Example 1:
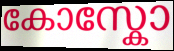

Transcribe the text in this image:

കോസ്കോ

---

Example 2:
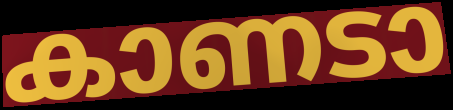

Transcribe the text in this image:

കാണടാ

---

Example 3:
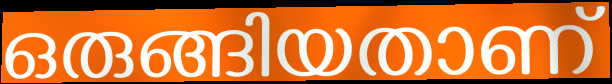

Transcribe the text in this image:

ഒരുങ്ങിയതാണ്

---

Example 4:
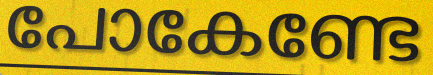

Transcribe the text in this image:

പോകേണ്ടേ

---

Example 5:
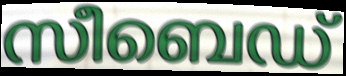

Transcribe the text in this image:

സീബെഡ്